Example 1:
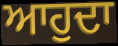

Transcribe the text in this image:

ਆਹੁਦਾ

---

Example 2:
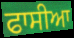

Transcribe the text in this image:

ਫਾਸੀਆ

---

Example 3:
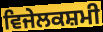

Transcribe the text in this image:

ਵਿਜੇਲਕਸ਼ਮੀ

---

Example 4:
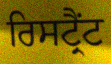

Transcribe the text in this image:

ਰਿਸਟ੍ਰੈਂਟ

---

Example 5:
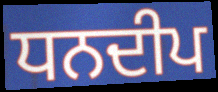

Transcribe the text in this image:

ਧਨਦੀਪ